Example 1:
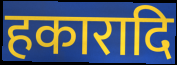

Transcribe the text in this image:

हकारादि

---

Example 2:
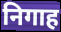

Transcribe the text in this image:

निगाह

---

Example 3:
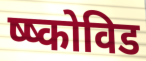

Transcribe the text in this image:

ष्ष्कोविड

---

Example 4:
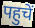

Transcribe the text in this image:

पहुचें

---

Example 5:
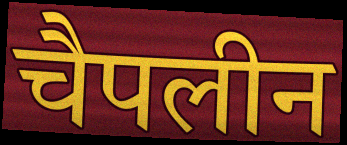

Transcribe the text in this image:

चैपलीन